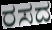
ರಸದ